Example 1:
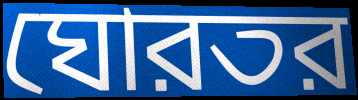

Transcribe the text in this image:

ঘোরতর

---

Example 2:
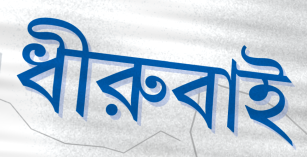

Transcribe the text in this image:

ধীরুবাই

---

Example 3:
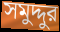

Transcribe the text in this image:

সমুদ্দুর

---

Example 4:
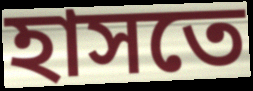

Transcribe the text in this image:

হাসতে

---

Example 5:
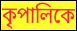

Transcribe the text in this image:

কৃপালিকে